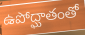
ఉపోద్ఘాతంతో